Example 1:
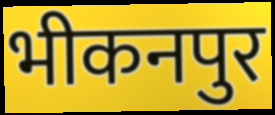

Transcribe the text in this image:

भीकनपुर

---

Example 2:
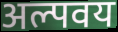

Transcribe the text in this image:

अल्पवय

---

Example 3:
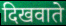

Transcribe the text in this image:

दिखवाते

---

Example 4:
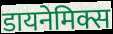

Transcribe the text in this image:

डायनेमिक्स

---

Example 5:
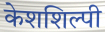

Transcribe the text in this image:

केशशिल्पी